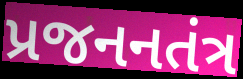
પ્રજનનતંત્ર